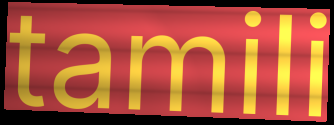
tamili